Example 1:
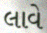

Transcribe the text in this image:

લાવે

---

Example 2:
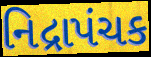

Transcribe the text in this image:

નિદ્રાપંચક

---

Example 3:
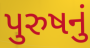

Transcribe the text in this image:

પુરુષનું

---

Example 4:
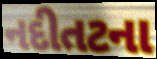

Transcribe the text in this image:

નદીતટના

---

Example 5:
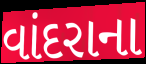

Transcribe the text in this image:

વાંદરાના